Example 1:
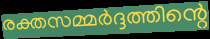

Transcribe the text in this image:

രക്തസമ്മർദ്ദത്തിന്റെ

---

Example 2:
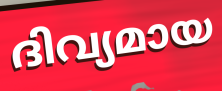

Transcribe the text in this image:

ദിവ്യമായ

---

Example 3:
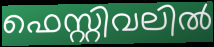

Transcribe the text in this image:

ഫെസ്റ്റിവലിൽ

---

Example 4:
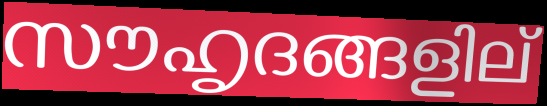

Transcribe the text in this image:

സൗഹൃദങ്ങളില്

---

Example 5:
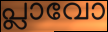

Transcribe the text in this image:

പ്ലാവോ